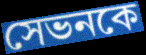
সেভনকে